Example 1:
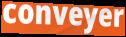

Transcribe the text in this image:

conveyer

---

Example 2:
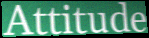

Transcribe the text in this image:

Attitude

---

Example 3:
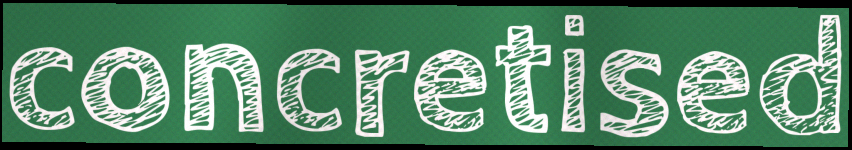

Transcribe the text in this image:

concretised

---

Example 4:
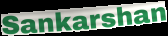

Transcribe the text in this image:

Sankarshan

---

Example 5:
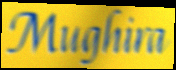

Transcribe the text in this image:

Mughira